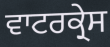
ਵਾਟਰਕ੍ਰੇਸ